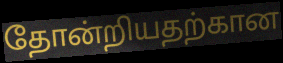
தோன்றியதற்கான